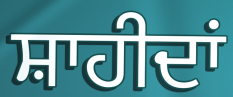
ਸ਼ਾਹੀਦਾਂ